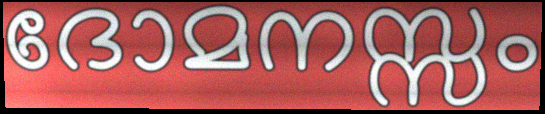
ദോമനസ്സം